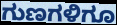
ಗುಣಗಳಿಗೂ